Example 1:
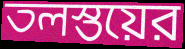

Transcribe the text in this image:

তলস্তয়ের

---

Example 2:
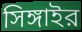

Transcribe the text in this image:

সিঙ্গাইর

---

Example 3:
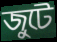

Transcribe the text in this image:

জুটে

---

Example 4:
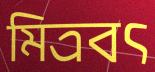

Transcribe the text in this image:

মিত্রবৎ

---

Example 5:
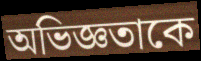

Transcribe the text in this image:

অভিজ্ঞতাকে